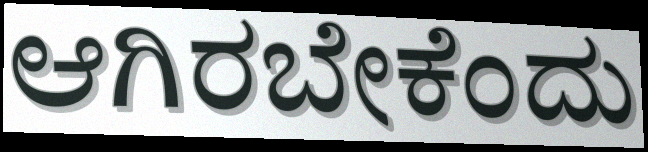
ಆಗಿರಬೇಕೆಂದು